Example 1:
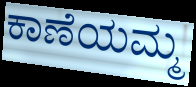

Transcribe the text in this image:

ಕಾಣೆಯಮ್ಮ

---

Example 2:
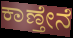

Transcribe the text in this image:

ಕಾಣ್ತೇನೆ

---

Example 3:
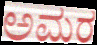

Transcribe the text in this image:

ಅಮರ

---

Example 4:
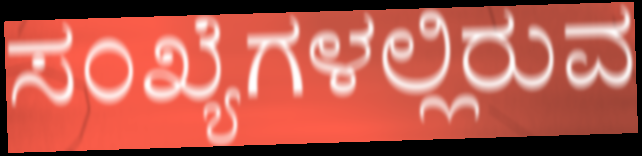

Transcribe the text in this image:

ಸಂಖ್ಯೆಗಳಲ್ಲಿರುವ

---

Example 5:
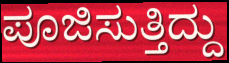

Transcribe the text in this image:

ಪೂಜಿಸುತ್ತಿದ್ದು